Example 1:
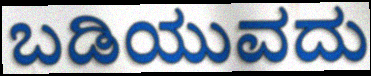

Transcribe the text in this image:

ಬಡಿಯುವದು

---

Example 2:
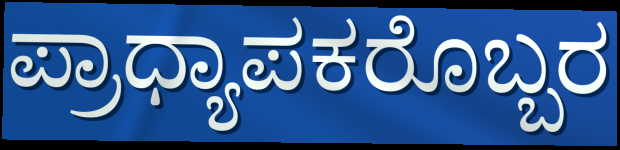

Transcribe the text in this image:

ಪ್ರಾಧ್ಯಾಪಕರೊಬ್ಬರ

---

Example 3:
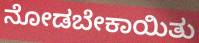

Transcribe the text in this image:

ನೋಡಬೇಕಾಯಿತು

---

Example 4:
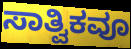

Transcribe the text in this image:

ಸಾತ್ವಿಕವೂ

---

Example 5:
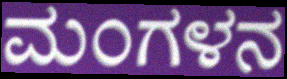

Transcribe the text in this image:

ಮಂಗಳನ